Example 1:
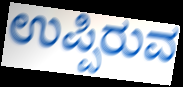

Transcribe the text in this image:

ಉಪ್ಪಿರುವ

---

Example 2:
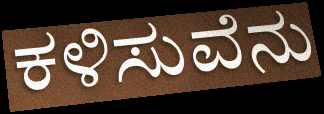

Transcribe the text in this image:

ಕಳಿಸುವೆನು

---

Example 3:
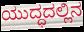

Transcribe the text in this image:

ಯುದ್ಧದಲ್ಲಿನ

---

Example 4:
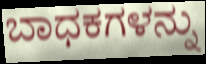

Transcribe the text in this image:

ಬಾಧಕಗಳನ್ನು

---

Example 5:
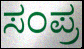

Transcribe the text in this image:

ಸಂಪ್ರ